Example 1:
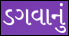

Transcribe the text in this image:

ડગવાનું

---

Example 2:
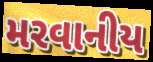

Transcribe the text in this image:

મરવાનીય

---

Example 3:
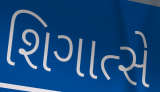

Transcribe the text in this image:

શિગાત્સે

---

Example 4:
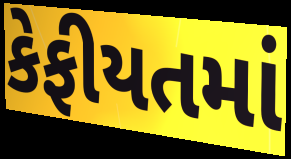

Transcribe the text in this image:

કેફીયતમાં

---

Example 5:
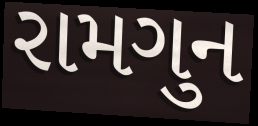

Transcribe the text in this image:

રામગુન